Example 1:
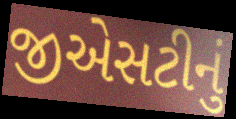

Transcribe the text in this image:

જીએસટીનું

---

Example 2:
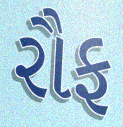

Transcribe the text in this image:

રૌફ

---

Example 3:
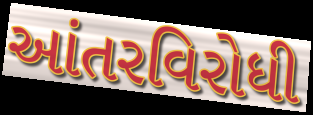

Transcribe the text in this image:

આંતરવિરોધી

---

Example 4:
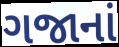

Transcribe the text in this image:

ગજાનાં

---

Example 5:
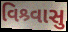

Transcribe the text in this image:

વિશ્ર્વાસુ